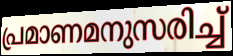
പ്രമാണമനുസരിച്ച്